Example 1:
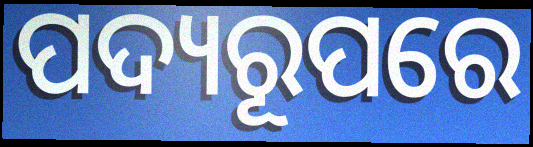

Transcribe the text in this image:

ପଦ୍ୟରୂପରେ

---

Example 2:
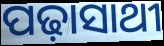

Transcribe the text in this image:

ପଢ଼ାସାଥୀ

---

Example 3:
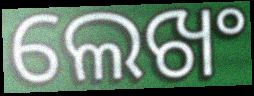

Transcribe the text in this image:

ଲେଖଂ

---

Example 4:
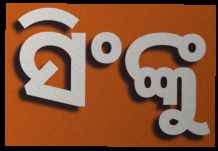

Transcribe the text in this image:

ସିଂଙ୍କୁ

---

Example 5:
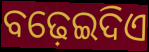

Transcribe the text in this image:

ବଢ଼େଇଦିଏ